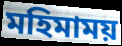
মহিমাময়